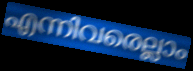
എന്നിവരെല്ലാം